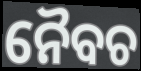
ନୈବଚ